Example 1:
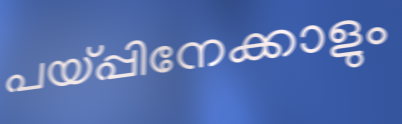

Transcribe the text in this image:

പയ്പ്പിനേക്കാളും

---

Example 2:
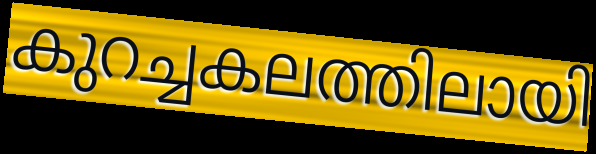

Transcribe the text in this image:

കുറച്ചകലത്തിലായി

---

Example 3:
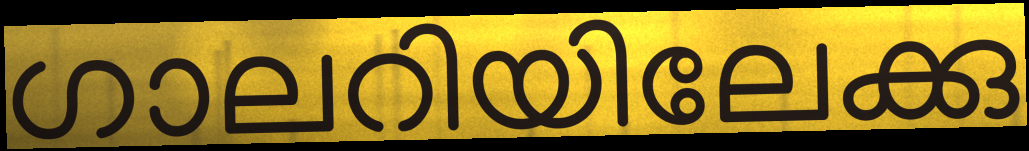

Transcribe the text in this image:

ഗാലറിയിലേക്കു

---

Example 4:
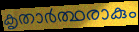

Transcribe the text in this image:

കൃതാർത്ഥരാകും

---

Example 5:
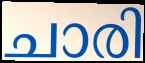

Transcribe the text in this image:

ചാരി